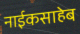
नाईकसाहेब